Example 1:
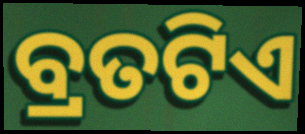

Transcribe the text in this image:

ବ୍ରତଟିଏ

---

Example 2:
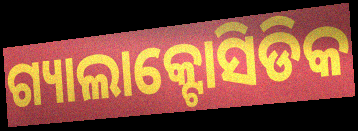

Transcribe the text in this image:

ଗ୍ୟାଲାକ୍ଟୋସିଡିକ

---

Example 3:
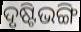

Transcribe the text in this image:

ଦୃଷ୍ଟିଭଙ୍ଗି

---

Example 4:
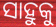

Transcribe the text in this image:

ସାହୁକୁ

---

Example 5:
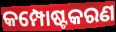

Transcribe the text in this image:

କମ୍ପୋଷ୍ଟକରଣ